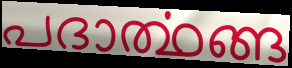
പദാൎത്ഥങ്ങ